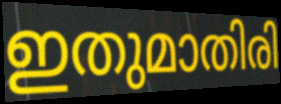
ഇതുമാതിരി